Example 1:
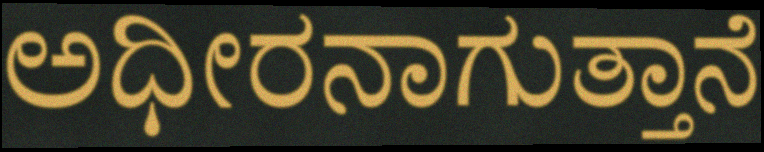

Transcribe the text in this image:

ಅಧೀರನಾಗುತ್ತಾನೆ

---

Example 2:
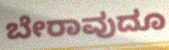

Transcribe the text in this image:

ಬೇರಾವುದೂ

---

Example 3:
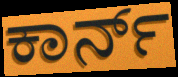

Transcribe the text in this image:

ಕಾರ್ನ್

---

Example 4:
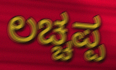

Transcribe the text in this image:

ಲಚ್ಚಪ್ಪ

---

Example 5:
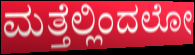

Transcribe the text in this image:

ಮತ್ತೆಲ್ಲಿಂದಲೋ